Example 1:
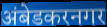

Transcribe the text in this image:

अंबेडकरनगर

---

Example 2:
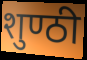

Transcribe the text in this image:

शुण्ठी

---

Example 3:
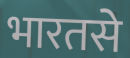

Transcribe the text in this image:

भारतसे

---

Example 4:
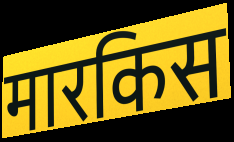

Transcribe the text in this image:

मारकिस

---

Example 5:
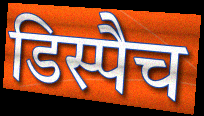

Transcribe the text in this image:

डिस्‍पैच